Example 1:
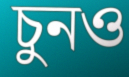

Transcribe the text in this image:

চুনও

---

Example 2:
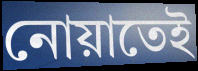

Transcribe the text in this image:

নোয়াতেই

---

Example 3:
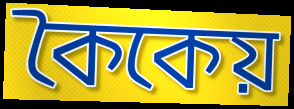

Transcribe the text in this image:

কৈকেয়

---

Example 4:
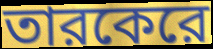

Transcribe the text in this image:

তারকেরে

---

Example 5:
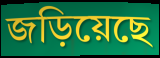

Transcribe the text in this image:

জড়িয়েছে